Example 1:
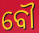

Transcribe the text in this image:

ବୌ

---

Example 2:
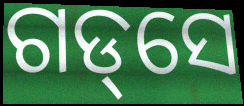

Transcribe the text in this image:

ଗଡ୍‌ସେ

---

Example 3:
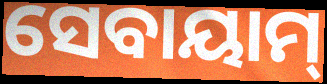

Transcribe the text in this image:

ସେବାୟାମ୍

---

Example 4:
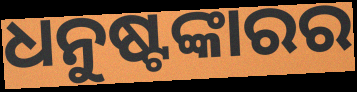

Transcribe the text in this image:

ଧନୁଷ୍ଟଙ୍କାରର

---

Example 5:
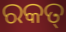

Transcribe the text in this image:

ରକତ୍